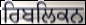
ਰਿਬਲਿਕਨ